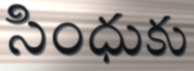
సింధుకు